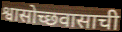
श्वासोच्छवासाची